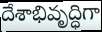
దేశాభివృద్ధిగా